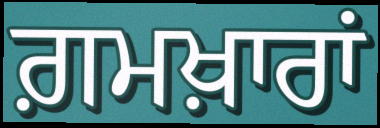
ਗ਼ਮਖ਼ਾਰਾਂ